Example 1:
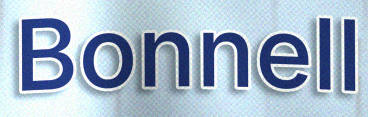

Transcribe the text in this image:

Bonnell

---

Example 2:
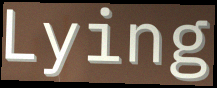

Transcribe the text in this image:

Lying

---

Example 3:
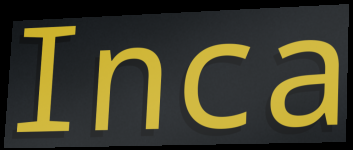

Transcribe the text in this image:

Inca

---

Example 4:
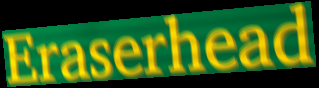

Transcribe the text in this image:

Eraserhead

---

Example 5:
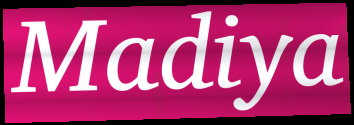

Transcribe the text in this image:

Madiya